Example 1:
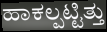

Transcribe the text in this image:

ಹಾಕಲ್ಪಟ್ಟಿತ್ತು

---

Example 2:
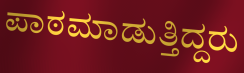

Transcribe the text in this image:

ಪಾಠಮಾಡುತ್ತಿದ್ದರು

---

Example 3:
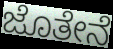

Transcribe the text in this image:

ಜೊತೇನೆ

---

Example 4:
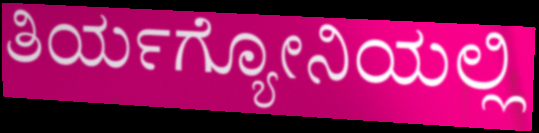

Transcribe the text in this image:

ತಿರ್ಯಗ್ಯೋನಿಯಲ್ಲಿ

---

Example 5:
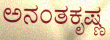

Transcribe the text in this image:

ಅನಂತಕೃಷ್ಣ